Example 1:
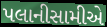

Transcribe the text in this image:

પલાનીસામીએ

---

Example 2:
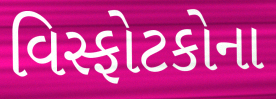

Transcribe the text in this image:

વિસ્ફોટકોના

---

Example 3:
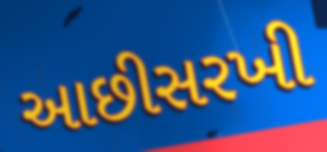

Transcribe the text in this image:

આછીસરખી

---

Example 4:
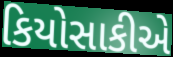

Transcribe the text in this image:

કિયોસાકીએ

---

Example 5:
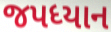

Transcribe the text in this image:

જપધ્યાન